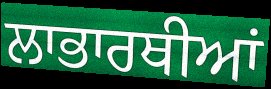
ਲਾਭਾਰਥੀਆਂ